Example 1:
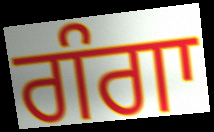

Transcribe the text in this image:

ਗੰਗਾ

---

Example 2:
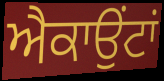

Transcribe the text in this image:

ਐਕਾਉਂਟਾਂ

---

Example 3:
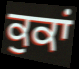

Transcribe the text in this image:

ਕੁਕਾਂ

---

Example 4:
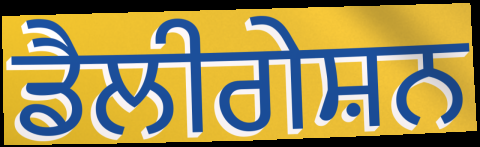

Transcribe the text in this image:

ਡੈਲੀਗੇਸ਼ਨ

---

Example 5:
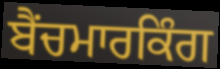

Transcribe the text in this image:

ਬੈਂਚਮਾਰਕਿੰਗ